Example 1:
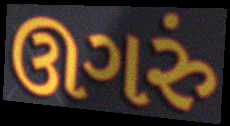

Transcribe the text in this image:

ઊગરું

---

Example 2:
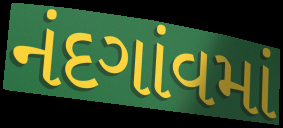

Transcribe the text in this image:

નંદગાંવમાં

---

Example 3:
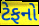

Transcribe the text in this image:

ટેફનો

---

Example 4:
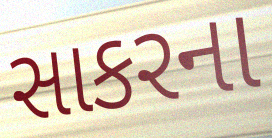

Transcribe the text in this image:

સાકરના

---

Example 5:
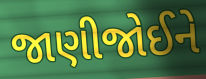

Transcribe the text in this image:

જાણીજોઈને